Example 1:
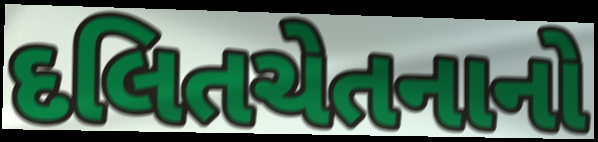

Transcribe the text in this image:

દલિતચેતનાનો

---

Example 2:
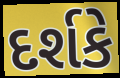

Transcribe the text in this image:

દર્શકે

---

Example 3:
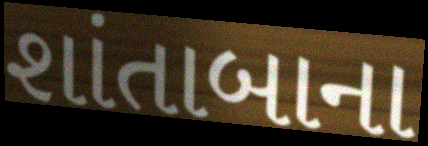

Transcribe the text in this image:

શાંતાબાના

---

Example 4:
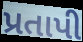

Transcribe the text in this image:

પ્રતાપી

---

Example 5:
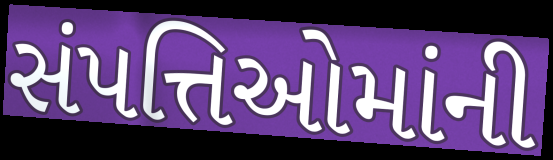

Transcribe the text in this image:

સંપત્તિઓમાંની